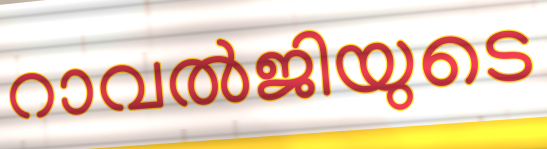
റാവൽജിയുടെ